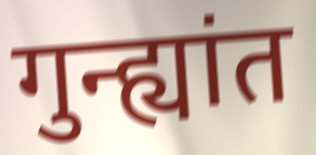
गुन्ह्यांत